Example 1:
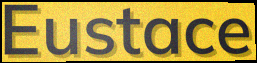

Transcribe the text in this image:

Eustace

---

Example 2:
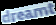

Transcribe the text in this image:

dreamt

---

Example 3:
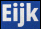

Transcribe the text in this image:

Eijk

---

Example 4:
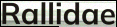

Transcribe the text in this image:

Rallidae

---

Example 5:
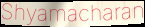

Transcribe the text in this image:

Shyamacharan